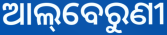
ଆଲ୍‌ବେରୁଣୀ